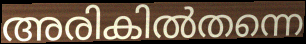
അരികിൽതന്നെ